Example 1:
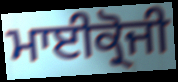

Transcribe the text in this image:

ਮਾਈਕ੍ਰੋਜੀ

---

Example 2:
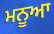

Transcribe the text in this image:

ਮਨੂਆ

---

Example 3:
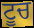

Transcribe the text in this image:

ਟੂਚ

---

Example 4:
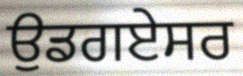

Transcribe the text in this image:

ਉਡਗਏਸਰ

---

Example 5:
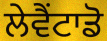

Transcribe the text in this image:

ਲੇਵੈਂਟਾਡੋ